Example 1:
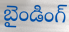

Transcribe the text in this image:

బైండింగ్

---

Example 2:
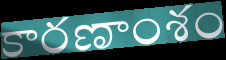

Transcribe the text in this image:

కారణాంశం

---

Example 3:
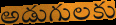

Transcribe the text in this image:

అడుగులకు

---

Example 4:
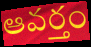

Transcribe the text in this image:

ఆవర్తం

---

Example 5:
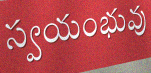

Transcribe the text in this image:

స్వయంభువు